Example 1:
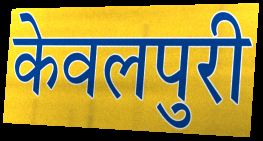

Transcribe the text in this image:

केवलपुरी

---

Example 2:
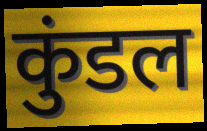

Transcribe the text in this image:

कुंडल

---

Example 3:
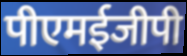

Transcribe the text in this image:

पीएमईजीपी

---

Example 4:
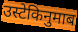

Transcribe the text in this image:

उस्टेकिनुमाब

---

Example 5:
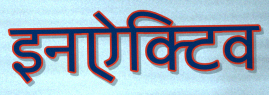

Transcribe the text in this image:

इनऐक्टिव